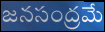
జనసంద్రమే